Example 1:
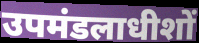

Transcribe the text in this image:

उपमंडलाधीशों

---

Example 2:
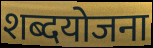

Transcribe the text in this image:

शब्दयोजना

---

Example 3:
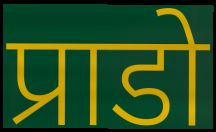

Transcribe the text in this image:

प्राडो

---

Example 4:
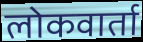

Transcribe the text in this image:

लोकवार्ता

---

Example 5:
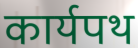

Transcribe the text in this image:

कार्यपथ